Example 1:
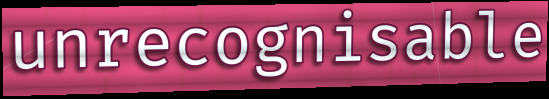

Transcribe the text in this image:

unrecognisable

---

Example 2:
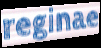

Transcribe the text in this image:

reginae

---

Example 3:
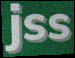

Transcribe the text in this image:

jss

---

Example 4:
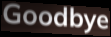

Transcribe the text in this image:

Goodbye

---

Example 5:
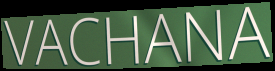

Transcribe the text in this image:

VACHANA